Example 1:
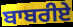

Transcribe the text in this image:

ਬਾਬਰੀਏ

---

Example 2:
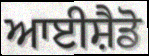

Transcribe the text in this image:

ਆਈਸ਼ੈਡੋ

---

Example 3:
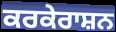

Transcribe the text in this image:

ਕਰਕੇਰਾਸ਼ਨ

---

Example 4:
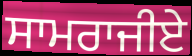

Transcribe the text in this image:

ਸਾਮਰਾਜੀਏ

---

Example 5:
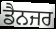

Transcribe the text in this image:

ਡੈਨਜਰ